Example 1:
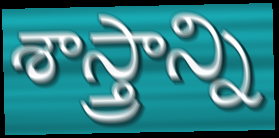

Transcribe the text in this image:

శాస్త్రాన్ని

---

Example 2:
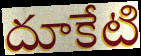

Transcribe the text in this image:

దూకేటి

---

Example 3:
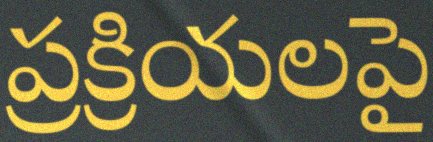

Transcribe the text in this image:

ప్రక్రియలపై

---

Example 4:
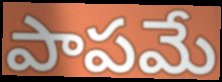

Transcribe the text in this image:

పాపమే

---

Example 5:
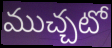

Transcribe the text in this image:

ముచ్చటో